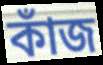
কাঁজ